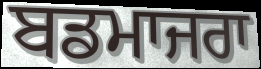
ਬਡਮਾਜਰਾ